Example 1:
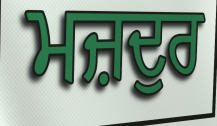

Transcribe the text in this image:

ਮਜ਼ਦੁਰ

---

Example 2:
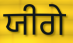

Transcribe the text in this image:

ਯੀਗੇ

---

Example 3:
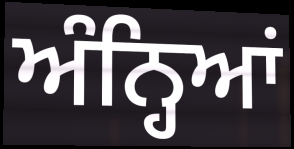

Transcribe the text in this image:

ਅੰਨ੍ਹਿਆਂ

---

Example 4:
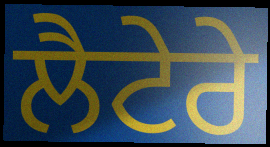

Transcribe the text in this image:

ਲੈਟੇਰੇ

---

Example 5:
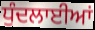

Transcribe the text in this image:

ਧੁੰਦਲਾਈਆਂ